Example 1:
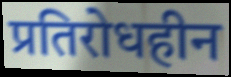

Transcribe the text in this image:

प्रतिरोधहीन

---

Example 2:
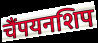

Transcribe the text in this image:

चैंपयनशिप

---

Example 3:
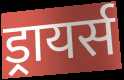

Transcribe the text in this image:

ड्रायर्स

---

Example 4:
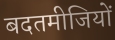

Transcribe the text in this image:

बदतमीजियों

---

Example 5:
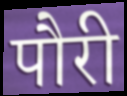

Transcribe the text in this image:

पौरी